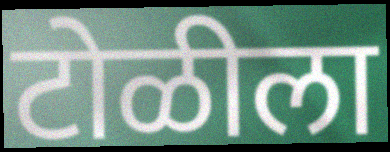
टोळीला